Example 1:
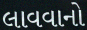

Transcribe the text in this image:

લાવવાનો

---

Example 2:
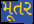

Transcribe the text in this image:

મૂતર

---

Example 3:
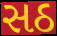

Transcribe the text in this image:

સઠ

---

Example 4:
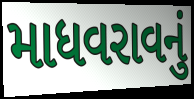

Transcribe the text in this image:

માધવરાવનું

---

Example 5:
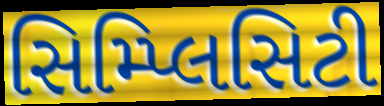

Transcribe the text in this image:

સિમ્પ્લિસિટી